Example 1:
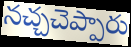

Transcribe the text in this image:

నచ్చచెప్పారు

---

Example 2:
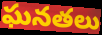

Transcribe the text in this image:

ఘనతలు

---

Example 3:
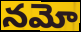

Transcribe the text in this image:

నమో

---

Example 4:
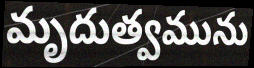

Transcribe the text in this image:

మృదుత్వమును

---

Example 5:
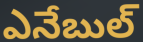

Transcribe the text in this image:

ఎనేబుల్